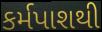
કર્મપાશથી